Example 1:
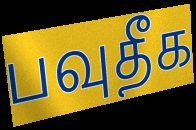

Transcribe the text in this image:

பவுதீக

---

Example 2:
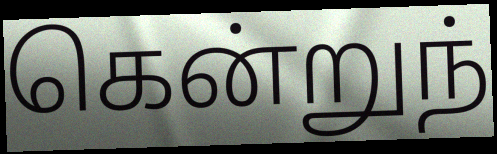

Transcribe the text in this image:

கென்றுந்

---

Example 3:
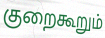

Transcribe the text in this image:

குறைகூறும்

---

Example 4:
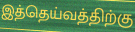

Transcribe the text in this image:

இத்தெய்வத்திற்கு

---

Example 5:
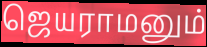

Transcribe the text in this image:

ஜெயராமனும்